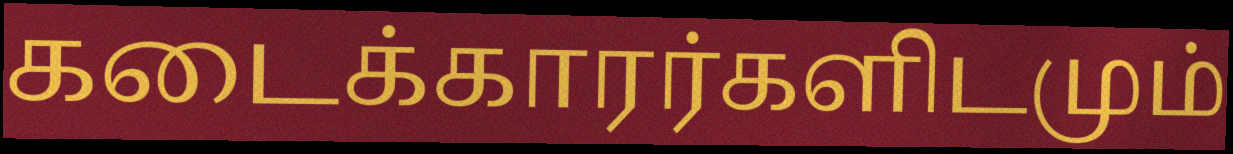
கடைக்காரர்களிடமும்